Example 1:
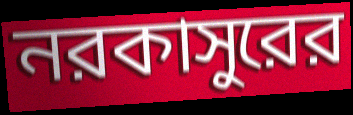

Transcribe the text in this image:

নরকাসুরের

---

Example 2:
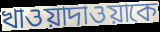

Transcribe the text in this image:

খাওয়াদাওয়াকে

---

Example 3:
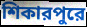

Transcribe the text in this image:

শিকারপুরে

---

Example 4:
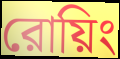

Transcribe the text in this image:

রোয়িং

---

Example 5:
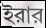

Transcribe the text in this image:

ইরার